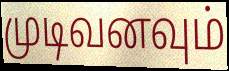
முடிவனவும்